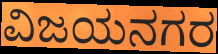
ವಿಜಯನಗರ